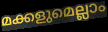
മക്കളുമെല്ലാം